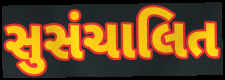
સુસંચાલિત